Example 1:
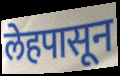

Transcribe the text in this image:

लेहपासून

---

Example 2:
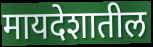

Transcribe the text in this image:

मायदेशातील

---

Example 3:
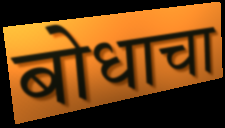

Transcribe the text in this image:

बोधाचा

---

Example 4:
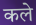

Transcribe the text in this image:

कले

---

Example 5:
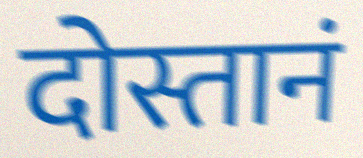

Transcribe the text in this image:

दोस्तानं